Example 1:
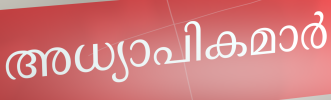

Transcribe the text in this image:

അധ്യാപികമാർ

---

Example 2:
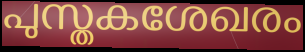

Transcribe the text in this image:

പുസ്തകശേഖരം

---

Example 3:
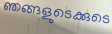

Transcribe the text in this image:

ഞങ്ങളുടെക്കുടെ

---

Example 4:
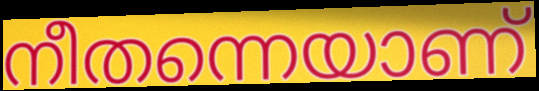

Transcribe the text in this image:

നീതന്നെയാണ്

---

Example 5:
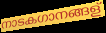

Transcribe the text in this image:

നാടകഗാനങ്ങള്